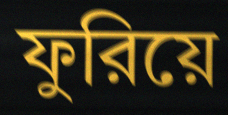
ফুরিয়ে